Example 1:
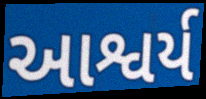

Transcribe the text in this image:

આશ્વર્ય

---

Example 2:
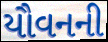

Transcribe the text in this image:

યૌવનની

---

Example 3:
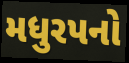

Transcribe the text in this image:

મધુરપનો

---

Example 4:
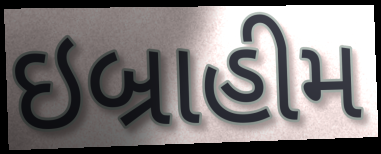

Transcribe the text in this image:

ઇબ્રાહીમ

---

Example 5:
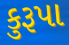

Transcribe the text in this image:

કુરૂપા